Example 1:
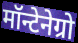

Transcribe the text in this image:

मॉन्टेनेग्रो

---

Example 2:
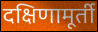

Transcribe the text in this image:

दक्षिणामूर्ती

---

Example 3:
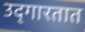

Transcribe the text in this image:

उद्‌गारतात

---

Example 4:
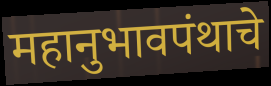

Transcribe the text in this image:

महानुभावपंथाचे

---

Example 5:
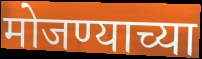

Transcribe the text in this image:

मोजण्याच्या